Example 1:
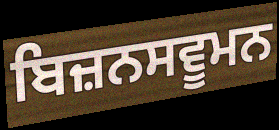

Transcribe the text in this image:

ਬਿਜ਼ਨਸਵੂਮਨ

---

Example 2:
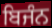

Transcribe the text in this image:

ਬਿਜੰਨ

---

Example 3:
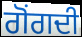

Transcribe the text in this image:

ਗੋਂਗਦੀ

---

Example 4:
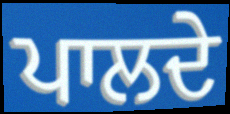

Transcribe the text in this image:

ਪਾਲਦੇ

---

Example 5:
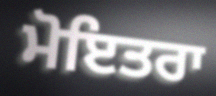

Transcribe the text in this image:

ਮੋਇਤਰਾ